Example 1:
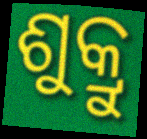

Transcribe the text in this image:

ଶୁକ୍ରୁ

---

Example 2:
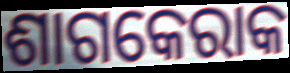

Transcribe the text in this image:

ଶାଗକେରାକ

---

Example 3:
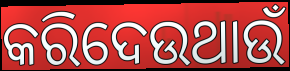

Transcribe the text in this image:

କରିଦେଉଥାଉଁ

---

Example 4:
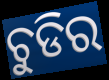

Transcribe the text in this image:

ଚୁଡିର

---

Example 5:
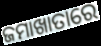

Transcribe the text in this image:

ଜମାଖାତାରେ